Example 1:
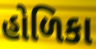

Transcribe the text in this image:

હોળિકા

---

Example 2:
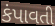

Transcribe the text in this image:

કંપાવતી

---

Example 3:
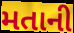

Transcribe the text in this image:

મતાની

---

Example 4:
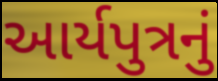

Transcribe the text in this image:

આર્યપુત્રનું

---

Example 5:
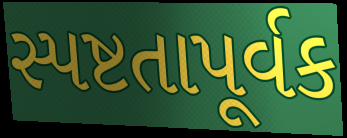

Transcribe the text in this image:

સ્પષ્ટતાપૂર્વક